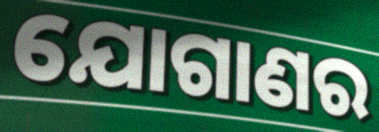
ଯୋଗାଣର